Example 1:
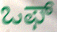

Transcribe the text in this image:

ಒಫ್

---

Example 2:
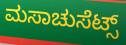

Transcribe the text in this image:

ಮಸಾಚುಸೆಟ್ಸ್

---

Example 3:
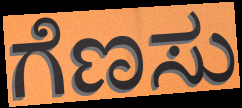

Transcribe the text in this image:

ಗೆಣಸು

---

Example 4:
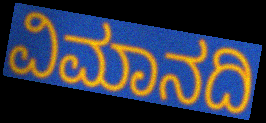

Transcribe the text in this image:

ವಿಮಾನದಿ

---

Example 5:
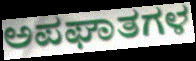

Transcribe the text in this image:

ಅಪಘಾತಗಳ